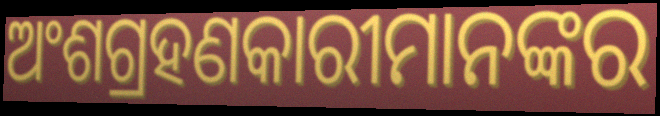
ଅଂଶଗ୍ରହଣକାରୀମାନଙ୍କର